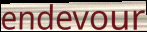
endevour